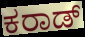
ಕರಾಡ್